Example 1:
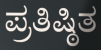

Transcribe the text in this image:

ಪ್ರತಿಷ್ಠಿತ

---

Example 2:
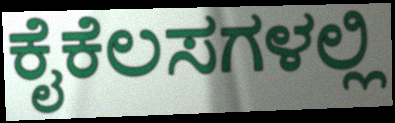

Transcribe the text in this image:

ಕೈಕೆಲಸಗಳಲ್ಲಿ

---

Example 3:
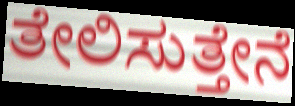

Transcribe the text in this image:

ತೇಲಿಸುತ್ತೇನೆ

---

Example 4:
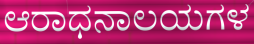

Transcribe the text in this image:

ಆರಾಧನಾಲಯಗಳ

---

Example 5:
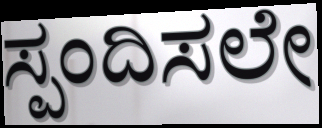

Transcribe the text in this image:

ಸ್ಪಂದಿಸಲೇ